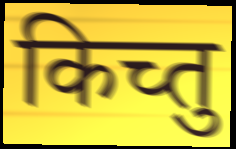
किच्तु